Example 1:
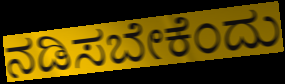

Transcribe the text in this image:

ನಡಿಸಬೇಕೆಂದು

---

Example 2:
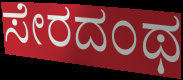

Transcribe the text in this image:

ಸೇರದಂಥ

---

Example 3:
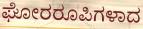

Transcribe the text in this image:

ಘೋರರೂಪಿಗಳಾದ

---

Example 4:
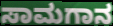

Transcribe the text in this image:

ಸಾಮಗಾನ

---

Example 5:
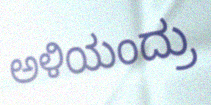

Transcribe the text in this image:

ಅಳಿಯಂದ್ರು